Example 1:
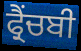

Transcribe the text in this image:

ਫ੍ਰੈਂਚਬੀ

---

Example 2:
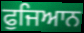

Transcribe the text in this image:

ਫੁਜਿਆਨ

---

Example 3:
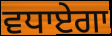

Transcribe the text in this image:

ਵਧਾਏਗਾ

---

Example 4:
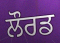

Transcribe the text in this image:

ਲੌਰਡ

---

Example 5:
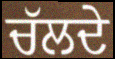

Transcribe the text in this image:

ਚੱਲਦੇ